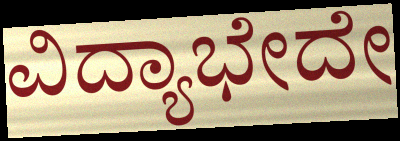
ವಿದ್ಯಾಭೇದೇ